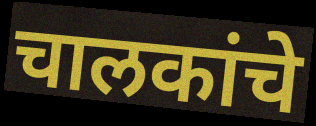
चालकांचे